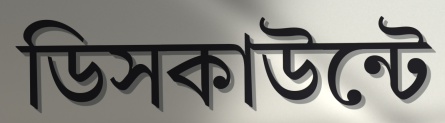
ডিসকাউন্টে